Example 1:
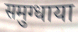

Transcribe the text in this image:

समुग्धाया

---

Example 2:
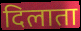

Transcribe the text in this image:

दिलाता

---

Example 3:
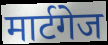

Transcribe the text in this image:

मार्टगेज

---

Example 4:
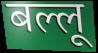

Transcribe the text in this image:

बल्लू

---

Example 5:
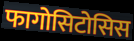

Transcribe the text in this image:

फागोसिटोसिस